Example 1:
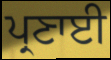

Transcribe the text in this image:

ਪ੍ਰਣਾਈ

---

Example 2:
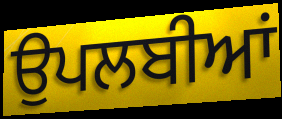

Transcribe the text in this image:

ਉਪਲਬੀਆਂ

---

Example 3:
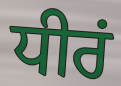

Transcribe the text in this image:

ਧੀਰਂ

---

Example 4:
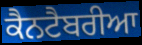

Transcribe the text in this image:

ਕੈਨਟੈਬਰੀਆ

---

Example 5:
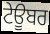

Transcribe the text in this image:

ਟੇਊਬਰ